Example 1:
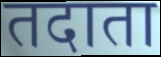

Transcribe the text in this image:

तदाता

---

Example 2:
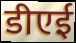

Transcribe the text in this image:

डीएई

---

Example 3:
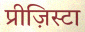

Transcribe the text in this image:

प्रीज़िस्टा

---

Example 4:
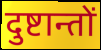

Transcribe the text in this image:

दुष्टान्तों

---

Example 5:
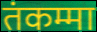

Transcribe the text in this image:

तंकम्मा